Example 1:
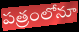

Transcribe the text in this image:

పత్రంలోనూ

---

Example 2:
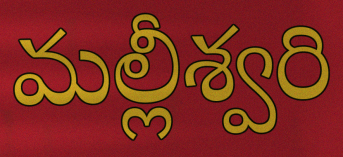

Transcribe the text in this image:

మల్లీశ్వరి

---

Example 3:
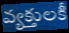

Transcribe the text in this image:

వ్యక్తులకీ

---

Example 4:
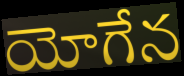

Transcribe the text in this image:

యోగేన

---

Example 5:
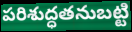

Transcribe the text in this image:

పరిశుద్ధతనుబట్టి